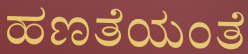
ಹಣತೆಯಂತೆ